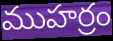
ముహర్రం